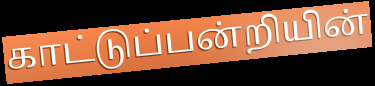
காட்டுப்பன்றியின்